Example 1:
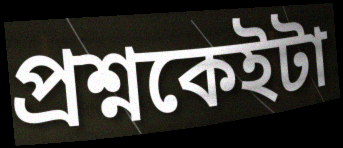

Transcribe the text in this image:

প্ৰশ্নকেইটা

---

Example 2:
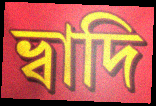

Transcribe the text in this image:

ভ্বাদি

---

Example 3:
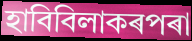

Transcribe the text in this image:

হাবিবিলাকৰপৰা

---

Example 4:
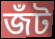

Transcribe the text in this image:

জঁট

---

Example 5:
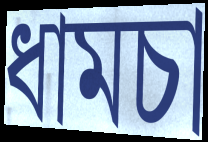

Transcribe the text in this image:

ধামচা